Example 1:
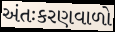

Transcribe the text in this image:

અંતઃકરણવાળો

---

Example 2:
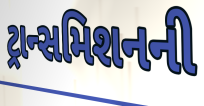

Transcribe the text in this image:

ટ્રાન્સમિશનની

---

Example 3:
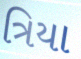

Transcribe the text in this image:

ત્રિયા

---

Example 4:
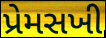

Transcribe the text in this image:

પ્રેમસખી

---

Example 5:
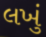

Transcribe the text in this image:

લખું